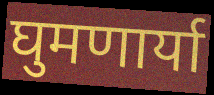
घुमणार्या